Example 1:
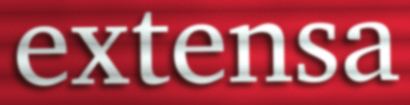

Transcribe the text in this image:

extensa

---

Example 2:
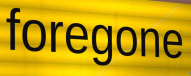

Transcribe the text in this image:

foregone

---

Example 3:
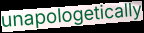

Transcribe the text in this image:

unapologetically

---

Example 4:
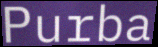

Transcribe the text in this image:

Purba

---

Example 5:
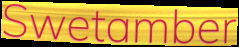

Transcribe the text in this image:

Swetamber